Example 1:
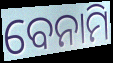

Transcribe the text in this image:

ବେନାମି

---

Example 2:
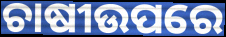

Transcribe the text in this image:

ଚାଷୀଉପରେ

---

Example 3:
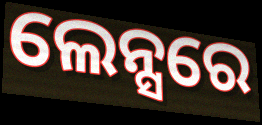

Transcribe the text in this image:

ଲେନ୍ସରେ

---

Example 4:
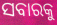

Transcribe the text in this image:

ସବାରକୁ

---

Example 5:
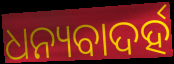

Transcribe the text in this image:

ଧନ୍ୟବାଦର୍ହ